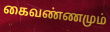
கைவண்ணமும்